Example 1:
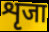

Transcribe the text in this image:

शृजा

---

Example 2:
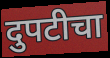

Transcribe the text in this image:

दुपटीचा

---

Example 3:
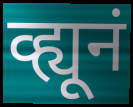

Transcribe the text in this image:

व्ह्यूनं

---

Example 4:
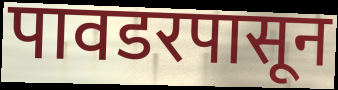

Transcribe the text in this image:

पावडरपासून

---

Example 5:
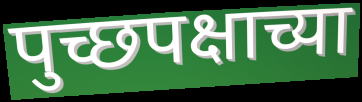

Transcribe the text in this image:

पुच्छपक्षाच्या